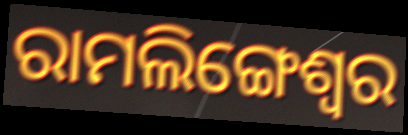
ରାମଲିଙ୍ଗେଶ୍ୱର